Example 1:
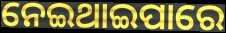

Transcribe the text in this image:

ନେଇଥାଇପାରେ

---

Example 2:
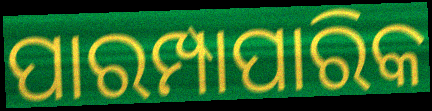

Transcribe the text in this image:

ପାରମ୍ପାପାରିକ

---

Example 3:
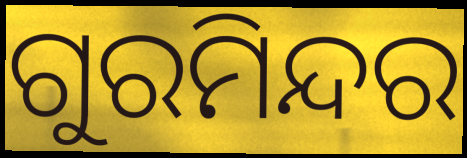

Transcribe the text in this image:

ଗୁରମିନ୍ଦର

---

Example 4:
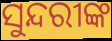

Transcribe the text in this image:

ସୁନ୍ଦରୀଙ୍କ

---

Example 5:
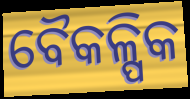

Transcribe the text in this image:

ବୈକଳ୍ପିକ